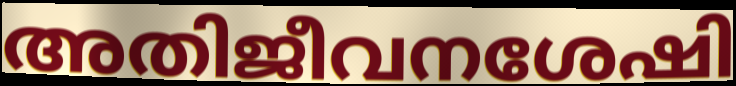
അതിജീവനശേഷി